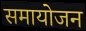
समायोजन